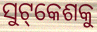
ସୁଟ୍‌କେଶକୁ